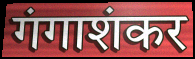
गंगाशंकर